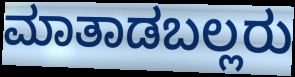
ಮಾತಾಡಬಲ್ಲರು